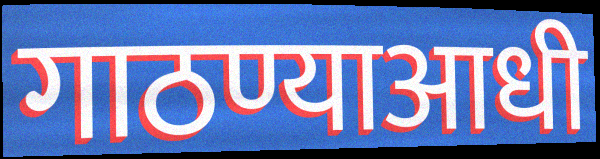
गाठण्याआधी